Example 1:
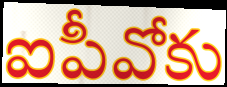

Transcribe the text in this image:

ఐపీవోకు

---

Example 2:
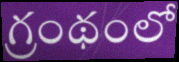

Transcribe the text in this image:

గ్రంథంలో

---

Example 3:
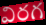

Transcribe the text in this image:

విరగ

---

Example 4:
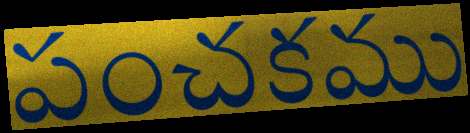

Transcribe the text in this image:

పంచకము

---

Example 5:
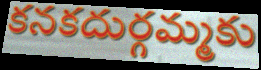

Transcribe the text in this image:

కనకదుర్గమ్మకు